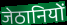
जेठानियों